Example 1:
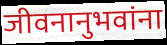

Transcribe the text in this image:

जीवनानुभवांना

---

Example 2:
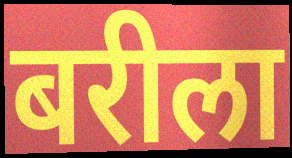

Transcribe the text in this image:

बरीला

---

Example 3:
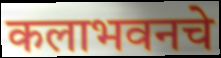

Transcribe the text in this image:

कलाभवनचे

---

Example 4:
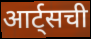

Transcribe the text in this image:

आर्ट्सची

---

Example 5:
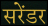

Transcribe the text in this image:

सरेंडर